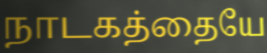
நாடகத்தையே